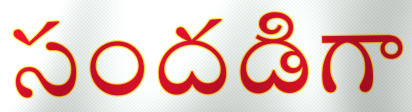
సందడిగా